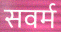
सवर्म